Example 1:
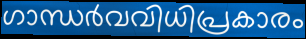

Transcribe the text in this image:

ഗാന്ധർവവിധിപ്രകാരം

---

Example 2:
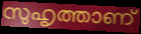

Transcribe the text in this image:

സുഹൃത്താണ്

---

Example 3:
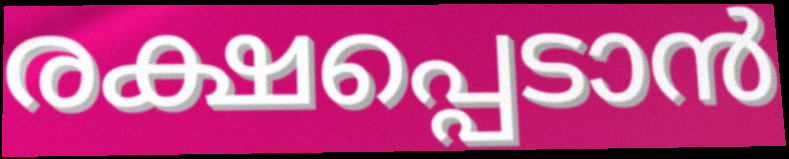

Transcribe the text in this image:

രക്ഷപ്പെടാൻ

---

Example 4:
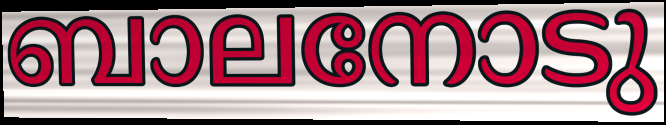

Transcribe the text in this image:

ബാലനോടു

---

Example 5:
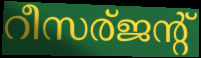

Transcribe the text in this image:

റീസര്ജന്റ്